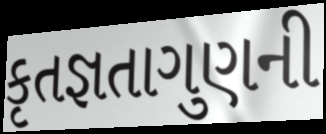
કૃતજ્ઞતાગુણની